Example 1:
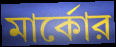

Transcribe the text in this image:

মার্কোর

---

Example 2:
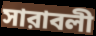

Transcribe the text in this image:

সারাবলী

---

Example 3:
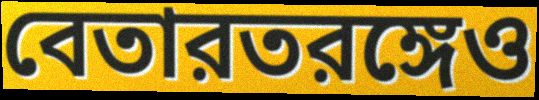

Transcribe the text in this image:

বেতারতরঙ্গেও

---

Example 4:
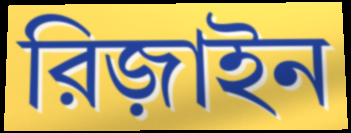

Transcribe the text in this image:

রিজ়াইন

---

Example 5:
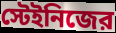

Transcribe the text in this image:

স্টেইনিজের